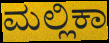
ಮಲ್ಲಿಕಾ